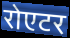
रोएटर